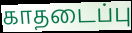
காதடைப்பு